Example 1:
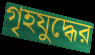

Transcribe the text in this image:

গৃহযুদ্ধের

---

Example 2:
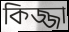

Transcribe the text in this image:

কিজ্জা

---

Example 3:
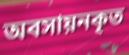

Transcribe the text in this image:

অবসায়নকৃত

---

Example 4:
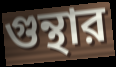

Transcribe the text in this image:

গুন্থার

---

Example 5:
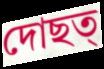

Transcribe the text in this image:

দোছত্